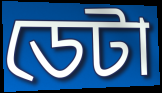
ডেটা